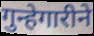
गुन्हेगारीने